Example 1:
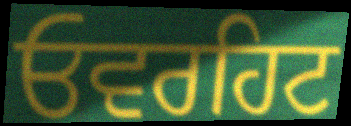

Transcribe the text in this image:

ਓਵਰਹਿਟ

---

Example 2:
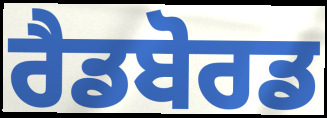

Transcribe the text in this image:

ਰੈਡਬੋਰਡ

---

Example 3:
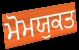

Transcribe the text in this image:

ਮੋਮਯੁਕਤ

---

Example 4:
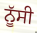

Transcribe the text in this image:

ਨੂੱਸੀ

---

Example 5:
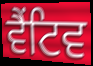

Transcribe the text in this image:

ਵੈਂਟਿਵ